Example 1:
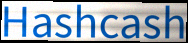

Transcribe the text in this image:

Hashcash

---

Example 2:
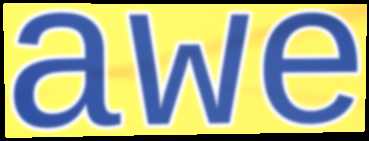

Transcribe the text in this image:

awe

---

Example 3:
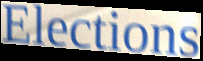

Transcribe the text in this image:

Elections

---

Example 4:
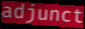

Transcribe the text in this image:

adjunct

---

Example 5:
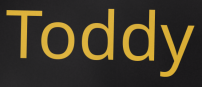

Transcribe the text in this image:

Toddy